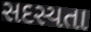
સદસ્યતા